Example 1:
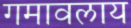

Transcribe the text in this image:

गमावलाय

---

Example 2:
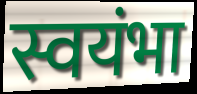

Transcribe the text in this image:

स्वयंभा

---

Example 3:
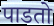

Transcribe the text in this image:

पाडतो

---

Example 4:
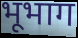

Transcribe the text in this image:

भूभाग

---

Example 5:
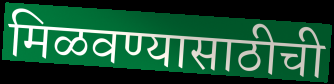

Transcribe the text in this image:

मिळवण्यासाठीची